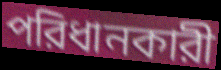
পরিধানকারী